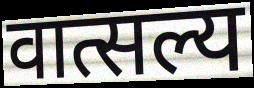
वात्सल्य